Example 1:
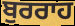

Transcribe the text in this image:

ਬੁਰਰਾਹ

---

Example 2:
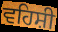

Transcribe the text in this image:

ਵਹਿਸ਼ੀ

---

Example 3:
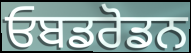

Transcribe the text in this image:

ਓਬਡਰੋਡਨ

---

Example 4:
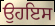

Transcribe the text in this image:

ਉਹਇਸ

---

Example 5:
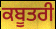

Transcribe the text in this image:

ਕਬੂਤਰੀ